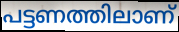
പട്ടണത്തിലാണ്